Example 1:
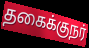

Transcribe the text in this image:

தகைக்குநர்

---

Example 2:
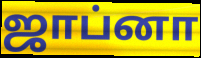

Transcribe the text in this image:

ஜாப்னா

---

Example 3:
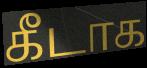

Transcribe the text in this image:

கீடாக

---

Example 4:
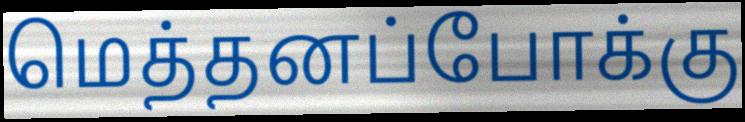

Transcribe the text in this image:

மெத்தனப்போக்கு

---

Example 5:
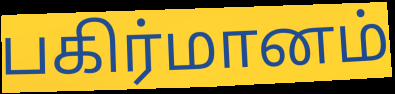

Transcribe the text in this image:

பகிர்மானம்